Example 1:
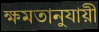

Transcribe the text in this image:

ক্ষমতানুযায়ী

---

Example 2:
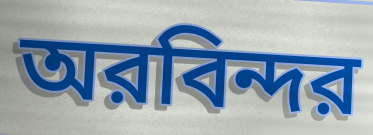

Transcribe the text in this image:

অরবিন্দর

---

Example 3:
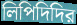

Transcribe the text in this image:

লিপিদিদির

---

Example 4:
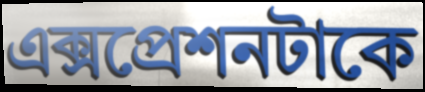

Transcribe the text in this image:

এক্সপ্রেশনটাকে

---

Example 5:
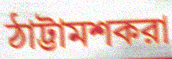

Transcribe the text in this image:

ঠাট্টামশকরা